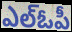
ఎల్ఓపీ